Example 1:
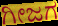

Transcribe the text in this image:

ಗೀಜಗ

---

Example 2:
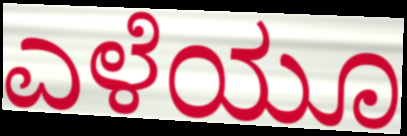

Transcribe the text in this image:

ಎಳೆಯೂ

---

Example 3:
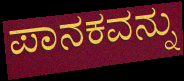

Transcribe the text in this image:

ಪಾನಕವನ್ನು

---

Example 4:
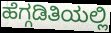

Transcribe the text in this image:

ಹೆಗ್ಗಡಿತಿಯಲ್ಲಿ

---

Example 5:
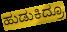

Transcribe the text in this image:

ಹುಡುಕಿದ್ರೂ